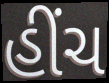
હીંચ